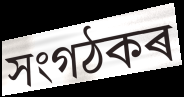
সংগঠকৰ